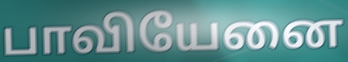
பாவியேனை